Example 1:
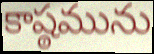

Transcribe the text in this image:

కాష్ఠమును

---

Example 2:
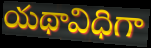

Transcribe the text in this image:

యథావిధిగా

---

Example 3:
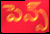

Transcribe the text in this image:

పెన్స్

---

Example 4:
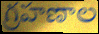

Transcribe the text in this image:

గ్రహణాల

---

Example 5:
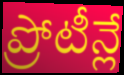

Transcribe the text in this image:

ప్రోటీన్లే